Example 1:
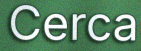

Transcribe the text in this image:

Cerca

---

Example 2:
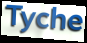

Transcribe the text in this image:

Tyche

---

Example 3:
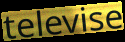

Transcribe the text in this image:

televise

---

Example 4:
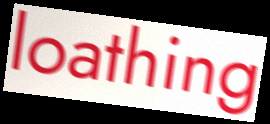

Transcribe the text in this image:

loathing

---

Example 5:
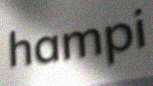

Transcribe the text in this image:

hampi